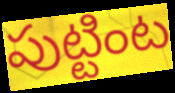
పుట్టింట